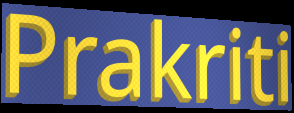
Prakriti